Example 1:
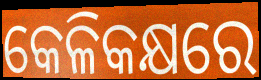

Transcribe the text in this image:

କେଳିକକ୍ଷରେ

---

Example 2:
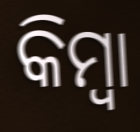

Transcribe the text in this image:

କିମ୍ଵା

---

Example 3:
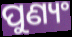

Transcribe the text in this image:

ପୁଣ୍ୟଂ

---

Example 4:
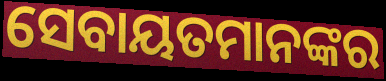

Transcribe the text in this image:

ସେବାୟତମାନଙ୍କର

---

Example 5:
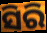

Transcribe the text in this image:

ସିରି